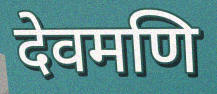
देवमणि